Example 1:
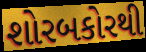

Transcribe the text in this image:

શોરબકોરથી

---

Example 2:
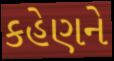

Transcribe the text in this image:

કહેણને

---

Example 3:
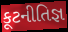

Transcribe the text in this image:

કૂટનીતિજ્ઞ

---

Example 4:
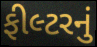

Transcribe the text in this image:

ફીલ્ટરનું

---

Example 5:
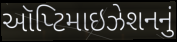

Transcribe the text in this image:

ઑપ્ટિમાઇઝેશનનું